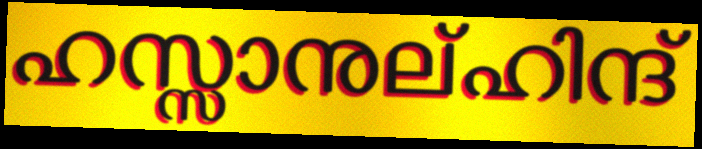
ഹസ്സാനുല്ഹിന്ദ്